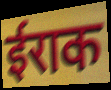
ईराक